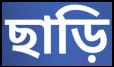
ছাড়ি